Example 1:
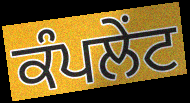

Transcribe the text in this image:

ਕੰਪਲੇਂਟ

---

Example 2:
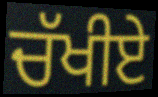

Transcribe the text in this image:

ਚੱਖੀਏ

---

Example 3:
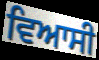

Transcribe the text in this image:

ਵਿਆਸੀ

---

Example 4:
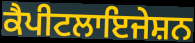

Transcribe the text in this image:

ਕੈਪੀਟਲਾਇਜੇਸ਼ਨ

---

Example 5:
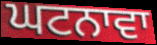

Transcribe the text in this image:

ਘਟਨਾਵਾ